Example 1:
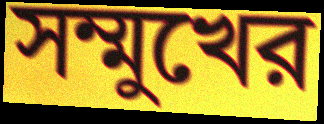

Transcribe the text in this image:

সম্মুখের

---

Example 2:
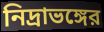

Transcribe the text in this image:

নিদ্রাভঙ্গের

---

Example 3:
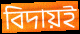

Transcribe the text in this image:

বিদায়ই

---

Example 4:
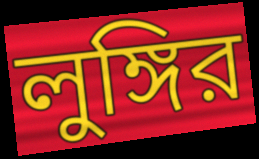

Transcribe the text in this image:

লুঙ্গির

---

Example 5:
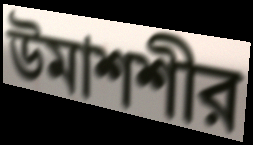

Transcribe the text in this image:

উমাশশীর